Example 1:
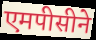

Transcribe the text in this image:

एमपीसीने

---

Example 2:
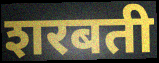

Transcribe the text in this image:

शरबती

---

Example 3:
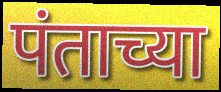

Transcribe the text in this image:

पंताच्या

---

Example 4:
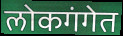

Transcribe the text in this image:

लोकगंगेत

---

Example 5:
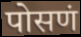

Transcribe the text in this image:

पोसणं